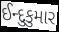
ઈન્દુકુમાર